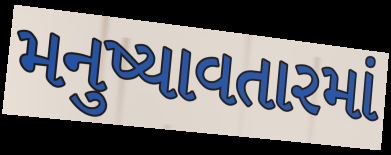
મનુષ્યાવતારમાં